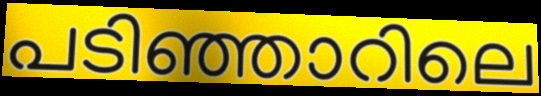
പടിഞ്ഞാറിലെ